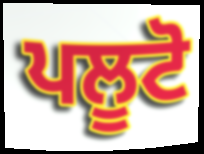
ਪਲੂਟੋ